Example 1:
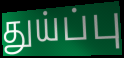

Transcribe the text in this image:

துய்ப்பு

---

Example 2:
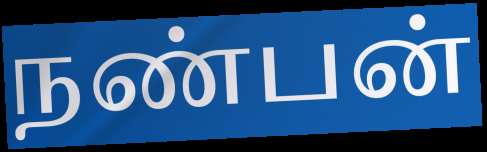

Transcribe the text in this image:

நண்பன்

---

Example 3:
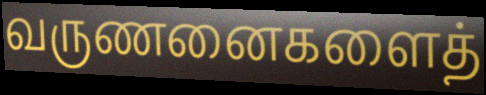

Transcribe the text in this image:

வருணனைகளைத்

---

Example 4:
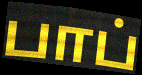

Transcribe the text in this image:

பாப்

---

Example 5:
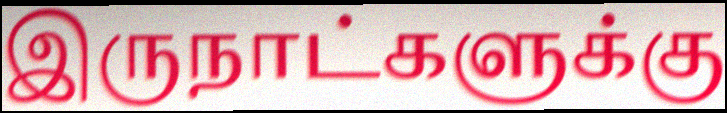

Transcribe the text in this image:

இருநாட்களுக்கு